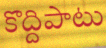
కొద్దిపాటు